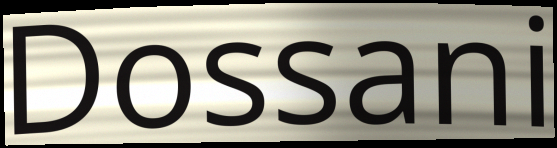
Dossani